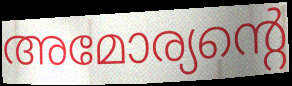
അമോര്യന്റെ